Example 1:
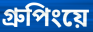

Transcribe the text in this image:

গ্রুপিংয়ে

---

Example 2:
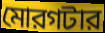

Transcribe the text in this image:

মোরগটার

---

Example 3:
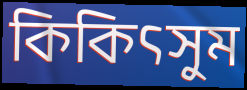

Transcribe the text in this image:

কিকিৎসুম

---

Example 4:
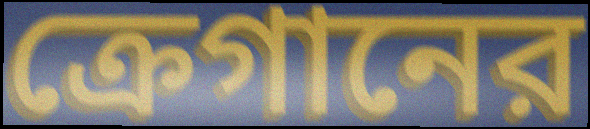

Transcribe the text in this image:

ক্রেগানের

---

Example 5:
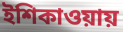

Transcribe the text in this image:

ইশিকাওয়ায়